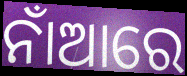
ନାଁଆରେ